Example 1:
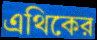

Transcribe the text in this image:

এথিকের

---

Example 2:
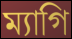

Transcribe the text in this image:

ম্যাগি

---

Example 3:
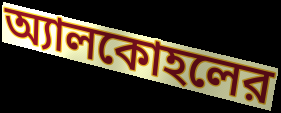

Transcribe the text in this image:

অ্যালকোহলের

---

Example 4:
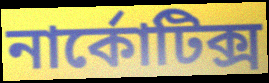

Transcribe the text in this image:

নার্কোটিক্স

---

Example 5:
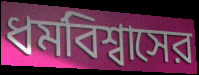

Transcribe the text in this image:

ধর্মবিশ্বাসের